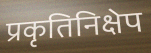
प्रकृतिनिक्षेप